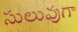
సులువుగా